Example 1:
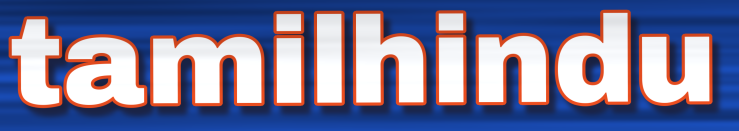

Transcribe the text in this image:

tamilhindu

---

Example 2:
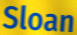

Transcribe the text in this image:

Sloan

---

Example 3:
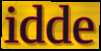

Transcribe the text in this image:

idde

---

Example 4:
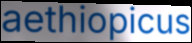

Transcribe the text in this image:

aethiopicus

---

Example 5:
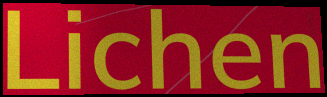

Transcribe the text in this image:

Lichen